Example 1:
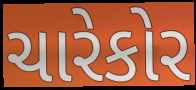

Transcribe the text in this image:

ચારેકોર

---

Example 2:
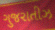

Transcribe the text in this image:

ગુજરાતીઝ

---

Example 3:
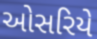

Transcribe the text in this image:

ઓસરિયે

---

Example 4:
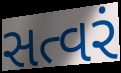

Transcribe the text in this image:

સત્વરં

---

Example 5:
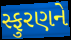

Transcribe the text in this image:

સ્ફુરણને